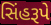
સિંહરૂપે